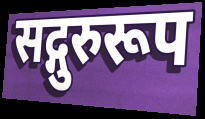
सद्गुरुरूप